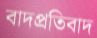
বাদপ্রতিবাদ